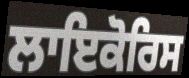
ਲਾਇਕੋਰਿਸ